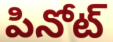
పినోట్